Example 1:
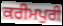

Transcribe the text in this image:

ਕਰੀਮਪੁਰੀ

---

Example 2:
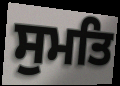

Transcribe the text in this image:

ਸੁਮਤਿ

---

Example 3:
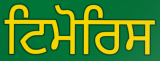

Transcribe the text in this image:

ਟਿਮੋਰਿਸ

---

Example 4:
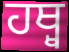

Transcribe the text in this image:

ਹਥ੍ਥ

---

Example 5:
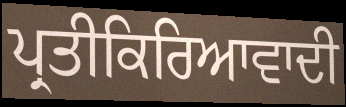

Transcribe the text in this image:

ਪ੍ਰਤੀਕਿਰਿਆਵਾਦੀ